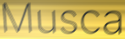
Musca